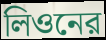
লিওনের